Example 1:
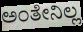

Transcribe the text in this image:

ಅಂತೇನಿಲ್ಲ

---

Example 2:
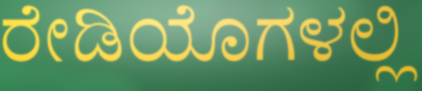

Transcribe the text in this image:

ರೇಡಿಯೊಗಳಲ್ಲಿ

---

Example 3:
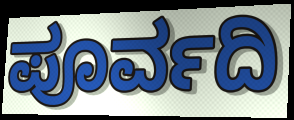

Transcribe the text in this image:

ಪೂರ್ವದಿ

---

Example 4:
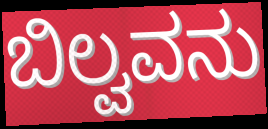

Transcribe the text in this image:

ಬಿಲ್ವವನು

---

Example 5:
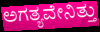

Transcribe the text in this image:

ಅಗತ್ಯವೇನಿತ್ತು